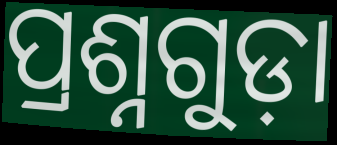
ପ୍ରଶ୍ନଗୁଡ଼ା